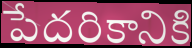
పేదరికానికి